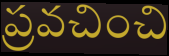
ప్రవచించి